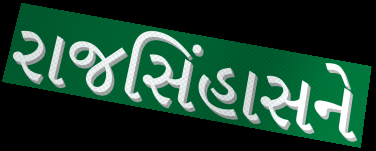
રાજસિંહાસને